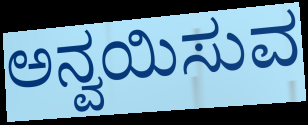
ಅನ್ವಯಿಸುವ